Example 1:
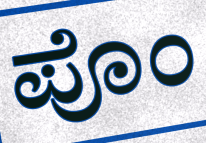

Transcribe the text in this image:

ಪೊಂ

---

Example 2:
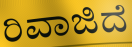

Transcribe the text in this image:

ರಿವಾಜಿದೆ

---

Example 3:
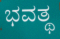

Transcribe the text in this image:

ಭವತ್ಥ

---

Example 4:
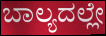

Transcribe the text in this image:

ಬಾಲ್ಯದಲ್ಲೇ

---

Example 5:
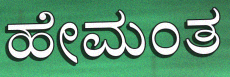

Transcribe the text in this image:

ಹೇಮಂತ